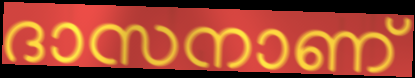
ദാസനാണ്